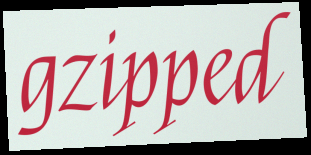
gzipped